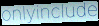
onlyinclude